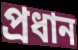
প্রধান